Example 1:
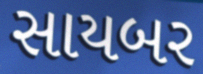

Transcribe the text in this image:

સાયબર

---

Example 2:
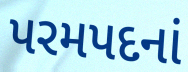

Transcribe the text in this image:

પરમપદનાં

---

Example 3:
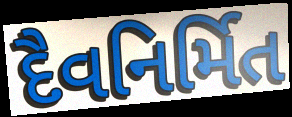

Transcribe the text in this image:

દૈવનિર્મિત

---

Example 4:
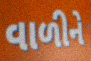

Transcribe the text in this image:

વાળીને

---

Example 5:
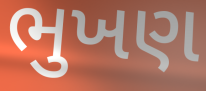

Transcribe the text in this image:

ભુખણ